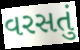
વરસતું